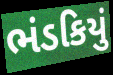
ભંડકિયું